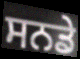
ਸਨਡੇ